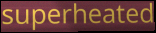
superheated